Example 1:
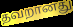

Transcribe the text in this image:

தவறானது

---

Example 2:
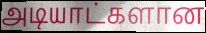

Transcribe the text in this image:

அடியாட்களான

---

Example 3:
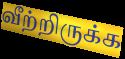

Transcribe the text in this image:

வீற்றிருக்க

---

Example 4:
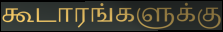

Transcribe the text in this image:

கூடாரங்களுக்கு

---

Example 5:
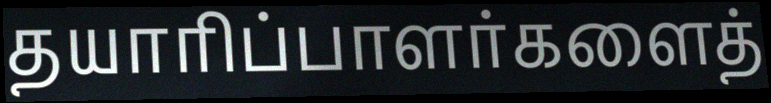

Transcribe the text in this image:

தயாரிப்பாளர்களைத்